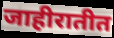
जाहीरातीत